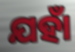
ଯହାଁ